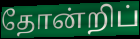
தோன்றிப்